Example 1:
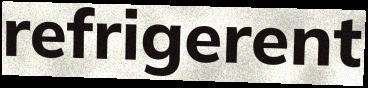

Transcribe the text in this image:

refrigerent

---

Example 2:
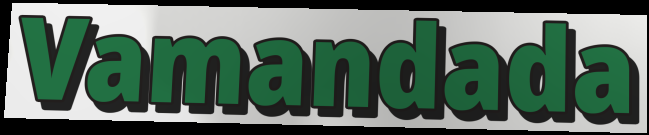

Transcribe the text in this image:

Vamandada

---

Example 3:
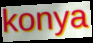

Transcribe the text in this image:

konya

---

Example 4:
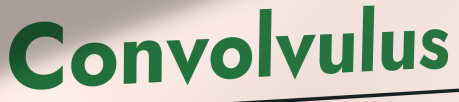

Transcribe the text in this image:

Convolvulus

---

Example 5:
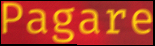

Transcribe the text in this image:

Pagare